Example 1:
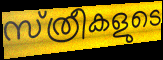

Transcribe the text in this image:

സ്‌ത്രീകളുടെ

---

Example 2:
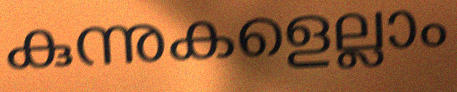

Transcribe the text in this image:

കുന്നുകളെല്ലാം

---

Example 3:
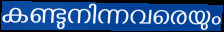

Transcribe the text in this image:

കണ്ടുനിന്നവരെയും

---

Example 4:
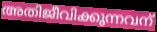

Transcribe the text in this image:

അതിജീവിക്കുന്നവന്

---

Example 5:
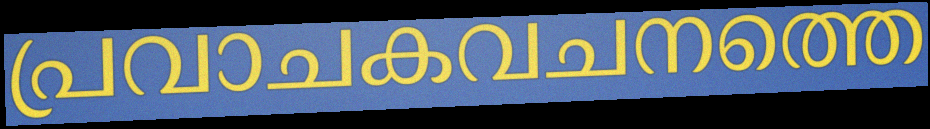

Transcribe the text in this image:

പ്രവാചകവചനത്തെ